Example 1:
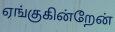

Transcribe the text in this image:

ஏங்குகின்றேன்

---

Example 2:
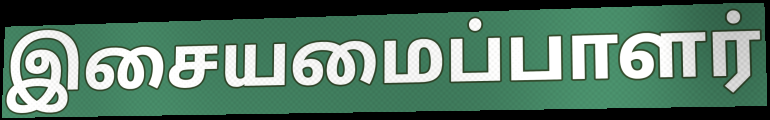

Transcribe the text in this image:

இசையமைப்பாளர்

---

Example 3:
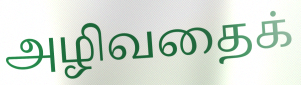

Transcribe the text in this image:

அழிவதைக்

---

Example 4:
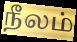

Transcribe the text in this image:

நீலம்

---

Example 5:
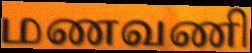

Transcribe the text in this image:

மணவணி